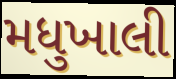
મધુખાલી